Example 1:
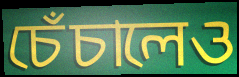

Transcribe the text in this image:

চেঁচালেও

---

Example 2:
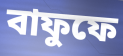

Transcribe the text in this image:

বাফুফে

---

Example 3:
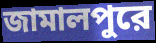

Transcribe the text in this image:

জামালপুরে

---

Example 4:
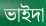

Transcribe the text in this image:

ভাইদা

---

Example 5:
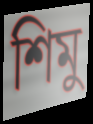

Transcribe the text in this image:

শিমু